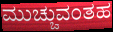
ಮುಚ್ಚುವಂತಹ